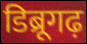
डिब्रूगढ़